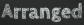
Arranged